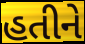
હતીને